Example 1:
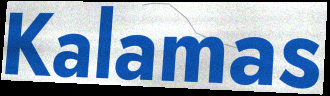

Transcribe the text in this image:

Kalamas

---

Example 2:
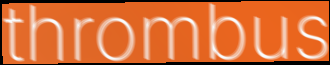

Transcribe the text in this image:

thrombus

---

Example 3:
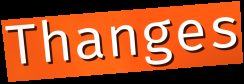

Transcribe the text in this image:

Thanges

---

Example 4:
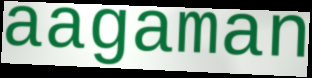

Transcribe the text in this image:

aagaman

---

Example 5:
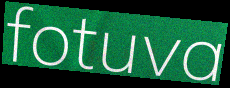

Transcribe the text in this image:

fotuva